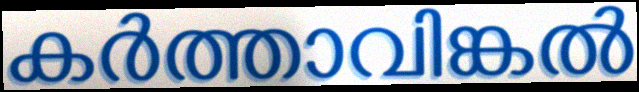
കർത്താവിങ്കൽ